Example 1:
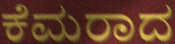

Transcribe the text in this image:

ಕೆಮರಾದ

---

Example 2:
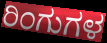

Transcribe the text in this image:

ರಿಂಗುಗಳ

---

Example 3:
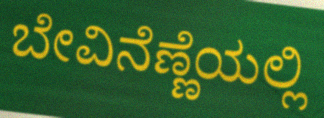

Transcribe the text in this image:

ಬೇವಿನೆಣ್ಣೆಯಲ್ಲಿ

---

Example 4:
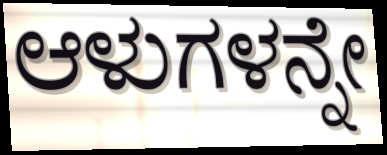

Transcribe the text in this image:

ಆಳುಗಳನ್ನೇ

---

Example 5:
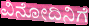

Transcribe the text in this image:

ವಿನೋದಿನಿಗೆ